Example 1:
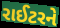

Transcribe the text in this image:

રાઈટરને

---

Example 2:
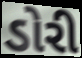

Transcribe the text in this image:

ડોરી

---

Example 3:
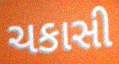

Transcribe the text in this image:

ચકાસી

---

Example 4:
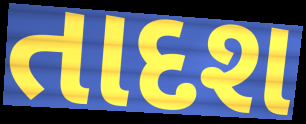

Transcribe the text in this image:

તાદશ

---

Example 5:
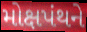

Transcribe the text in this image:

મોક્ષપંથને